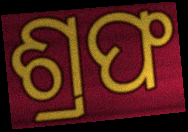
ଶ୍ରଫ